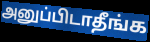
அனுப்பிடாதீங்க